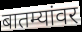
बातम्यांवर